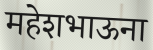
महेशभाऊना